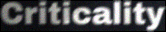
Criticality